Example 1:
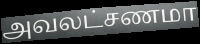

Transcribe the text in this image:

அவலட்சணமா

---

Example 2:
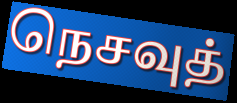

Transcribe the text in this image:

நெசவுத்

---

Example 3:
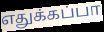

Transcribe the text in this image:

எதுக்கப்பா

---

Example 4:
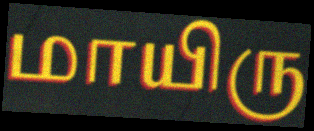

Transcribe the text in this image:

மாயிரு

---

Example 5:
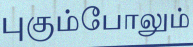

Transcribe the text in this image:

புகும்போலும்